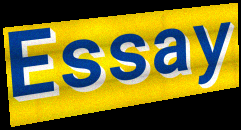
Essay